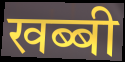
खब्बी